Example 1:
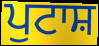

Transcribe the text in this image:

ਪੁਟਾਸ਼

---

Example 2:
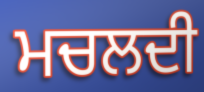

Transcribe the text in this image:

ਮਚਲਦੀ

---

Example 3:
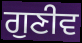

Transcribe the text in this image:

ਗੁਣੀਵ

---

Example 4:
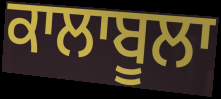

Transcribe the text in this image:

ਕਾਲਾਬੂਲਾ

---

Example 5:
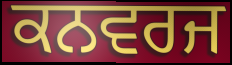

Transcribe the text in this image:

ਕਨਵਰਜ